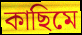
কাছিমে